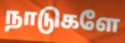
நாடுகளே